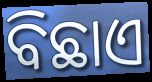
ବିଛାଏ